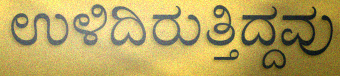
ಉಳಿದಿರುತ್ತಿದ್ದವು